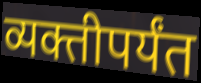
व्यक्तीपर्यंत